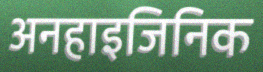
अनहाइजिनिक